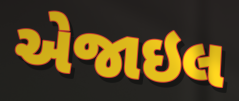
એજાઇલ